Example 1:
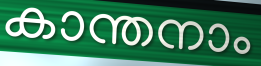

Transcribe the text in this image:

കാന്തനാം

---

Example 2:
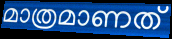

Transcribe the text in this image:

മാത്രമാണത്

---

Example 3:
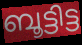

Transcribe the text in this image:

ബൂട്ടിട്ട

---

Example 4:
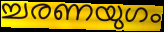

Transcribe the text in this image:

ച്ചരണയുഗം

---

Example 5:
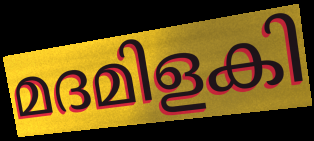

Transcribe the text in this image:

മദമിളകി